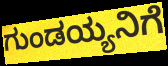
ಗುಂಡಯ್ಯನಿಗೆ